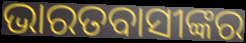
ଭାରତବାସୀଙ୍କର